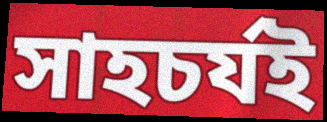
সাহচর্যই